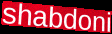
shabdoni